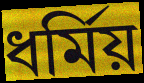
ধর্মিয়